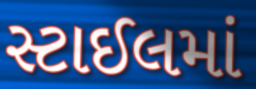
સ્ટાઈલમાં